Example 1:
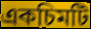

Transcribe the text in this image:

একচিমটি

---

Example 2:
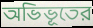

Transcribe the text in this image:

অভিভূতের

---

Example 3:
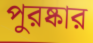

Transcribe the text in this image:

পুরষ্কার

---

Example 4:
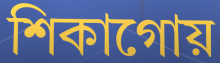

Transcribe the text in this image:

শিকাগোয়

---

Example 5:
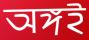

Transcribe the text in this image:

অঙ্গই